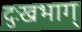
दुःखभाग्